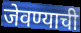
जेवण्याची